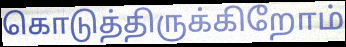
கொடுத்திருக்கிறோம்